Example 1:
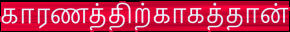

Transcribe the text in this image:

காரணத்திற்காகத்தான்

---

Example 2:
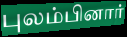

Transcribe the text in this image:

புலம்பினார்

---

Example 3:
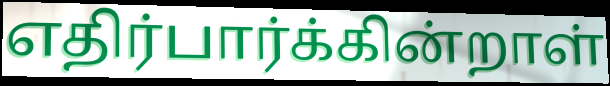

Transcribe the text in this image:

எதிர்பார்க்கின்றாள்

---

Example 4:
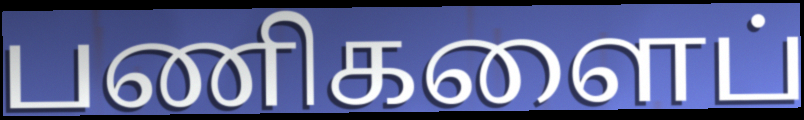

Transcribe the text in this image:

பணிகளைப்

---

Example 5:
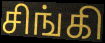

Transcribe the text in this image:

சிங்கி